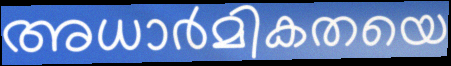
അധാർമികതയെ